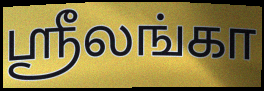
ஶ்ரீலங்கா